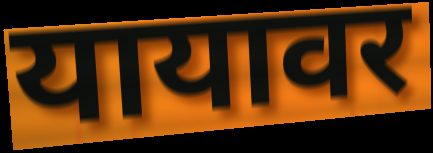
यायावर